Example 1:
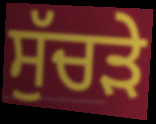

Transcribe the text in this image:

ਸੁੱਚੜੇ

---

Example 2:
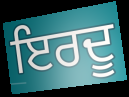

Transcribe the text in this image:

ਇਰਦੂ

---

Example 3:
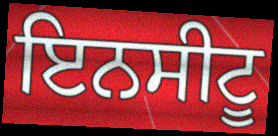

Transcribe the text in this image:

ਇਨਸੀਟੂ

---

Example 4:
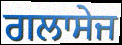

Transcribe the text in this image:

ਗਲਾਸੇਜ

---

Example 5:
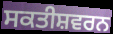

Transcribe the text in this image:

ਸਕਤੀਸ਼ਵਰਨ